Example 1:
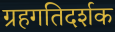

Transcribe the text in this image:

ग्रहगतिदर्शक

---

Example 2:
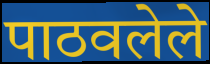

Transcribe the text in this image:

पाठवलेले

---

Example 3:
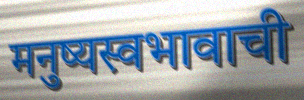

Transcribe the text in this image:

मनुष्यस्वभावाची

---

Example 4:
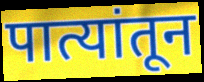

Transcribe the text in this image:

पात्यांतून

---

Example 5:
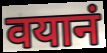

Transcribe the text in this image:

वयानं